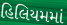
હિલિયમમાં